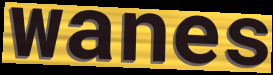
wanes